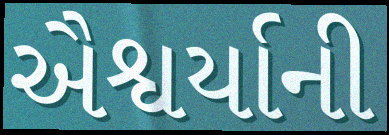
ઐશ્વર્યાની